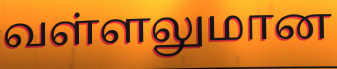
வள்ளலுமான